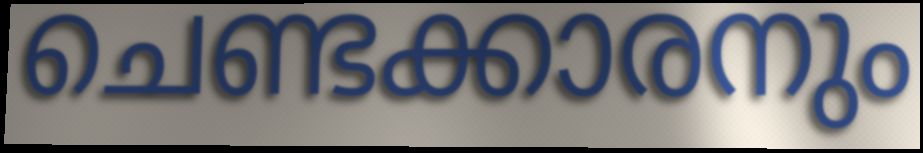
ചെണ്ടക്കാരനും